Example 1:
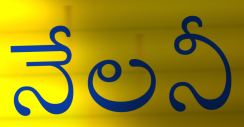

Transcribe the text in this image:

నేలనీ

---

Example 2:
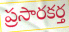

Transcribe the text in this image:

ప్రసారకర్త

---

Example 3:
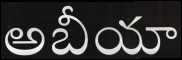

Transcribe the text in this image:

అబీయా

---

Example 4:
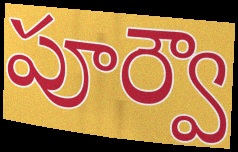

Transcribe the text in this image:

పూర్వౌ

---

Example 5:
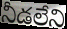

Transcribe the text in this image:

నీడలేని